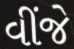
વીંજે